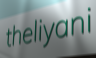
theliyani